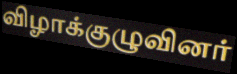
விழாக்குழுவினர்